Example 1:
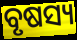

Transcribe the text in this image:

ବୃଷସ୍ୟ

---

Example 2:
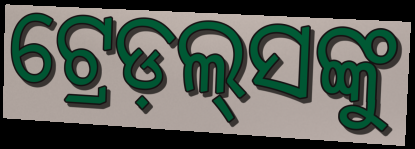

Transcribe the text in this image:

ଟ୍ରେଡ଼ଲ୍‍ସଙ୍କୁ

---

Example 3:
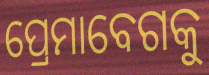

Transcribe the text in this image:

ପ୍ରେମାବେଗକୁ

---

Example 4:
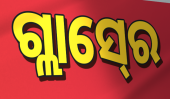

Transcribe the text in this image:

ଗ୍ଲାସ୍‍ରେ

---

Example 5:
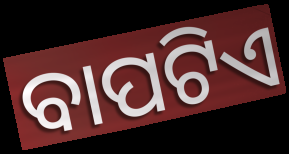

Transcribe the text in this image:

ବାପଟିଏ